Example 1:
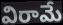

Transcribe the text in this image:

విరామే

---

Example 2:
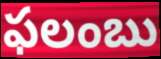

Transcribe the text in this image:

ఫలంబు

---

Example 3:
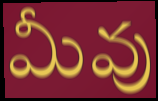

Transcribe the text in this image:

మీవు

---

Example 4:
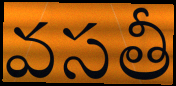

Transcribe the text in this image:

వసతీ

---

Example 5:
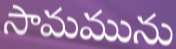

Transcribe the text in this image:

సామమును